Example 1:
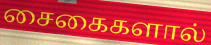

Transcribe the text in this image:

சைகைகளால்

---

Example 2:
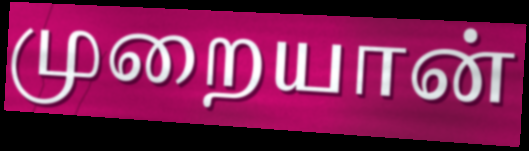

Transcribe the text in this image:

முறையான்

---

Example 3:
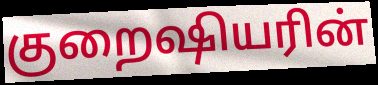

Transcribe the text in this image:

குறைஷியரின்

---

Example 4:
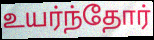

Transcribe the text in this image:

உயர்ந்தோர்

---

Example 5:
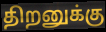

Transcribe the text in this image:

திறனுக்கு